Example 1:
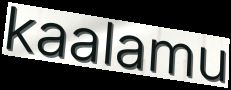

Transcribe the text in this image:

kaalamu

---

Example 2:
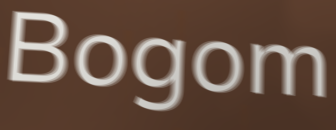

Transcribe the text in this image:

Bogom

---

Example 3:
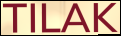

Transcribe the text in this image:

TILAK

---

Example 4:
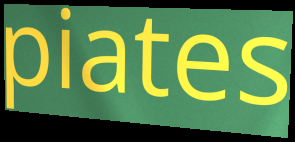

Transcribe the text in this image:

piates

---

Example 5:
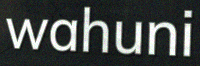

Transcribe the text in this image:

wahuni